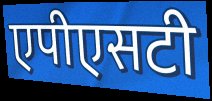
एपीएसटी